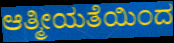
ಆತ್ಮೀಯತೆಯಿಂದ